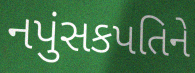
નપુંસકપતિને